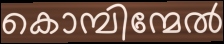
കൊമ്പിന്മേൽ